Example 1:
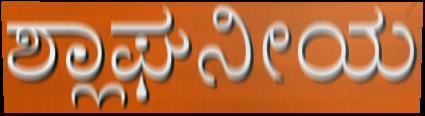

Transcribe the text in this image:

ಶ್ಲಾಘನೀಯ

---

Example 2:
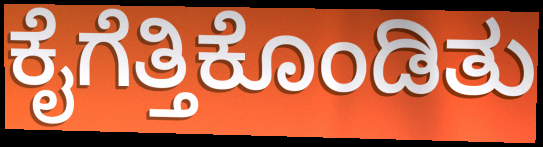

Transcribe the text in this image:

ಕೈಗೆತ್ತಿಕೊಂಡಿತು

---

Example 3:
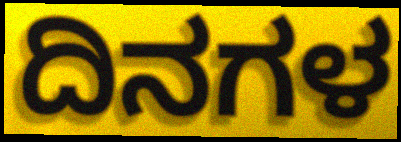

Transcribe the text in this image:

ದಿನಗಳ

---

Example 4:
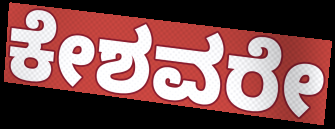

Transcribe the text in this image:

ಕೇಶವರೇ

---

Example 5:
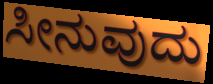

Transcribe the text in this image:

ಸೀನುವುದು